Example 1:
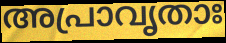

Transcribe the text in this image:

അപ്രാവൃതാഃ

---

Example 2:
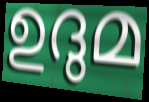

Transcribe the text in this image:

ഉദുമ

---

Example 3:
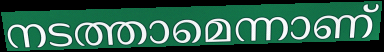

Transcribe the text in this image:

നടത്താമെന്നാണ്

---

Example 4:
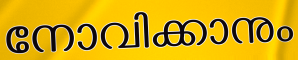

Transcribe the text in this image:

നോവിക്കാനും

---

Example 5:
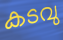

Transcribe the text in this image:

കടവു